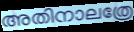
അതിനാലത്രേ